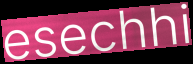
esechhi